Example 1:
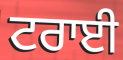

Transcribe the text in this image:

ਟਰਾਈ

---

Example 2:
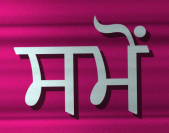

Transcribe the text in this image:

ਸਮੋਂ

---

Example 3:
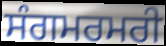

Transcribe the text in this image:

ਸੰਗਮਰਮਰੀ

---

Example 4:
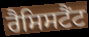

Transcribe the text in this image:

ਰੈਸਿਸਟੈਂਟ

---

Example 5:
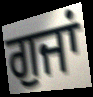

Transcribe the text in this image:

ਗੁਜਾਂ